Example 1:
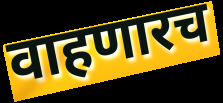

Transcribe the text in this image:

वाहणारच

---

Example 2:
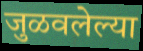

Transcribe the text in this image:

जुळवलेल्या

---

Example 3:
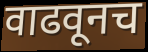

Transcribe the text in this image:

वाढवूनच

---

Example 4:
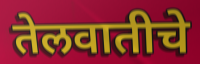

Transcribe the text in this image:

तेलवातीचे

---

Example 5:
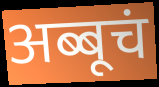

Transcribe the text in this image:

अब्बूचं